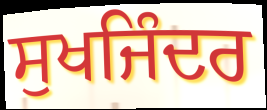
ਸੁਖਜਿੰਦਰ